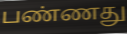
பண்ணது